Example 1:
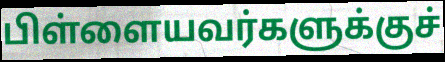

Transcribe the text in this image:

பிள்ளையவர்களுக்குச்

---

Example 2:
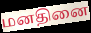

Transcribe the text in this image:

மனதினை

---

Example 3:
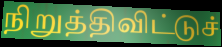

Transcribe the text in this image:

நிறுத்திவிட்டுச்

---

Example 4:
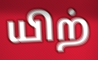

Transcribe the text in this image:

யிற்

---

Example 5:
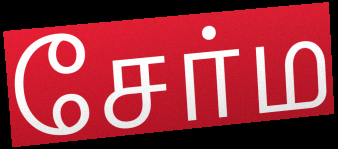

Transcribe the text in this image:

சேர்ம